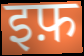
इफ़